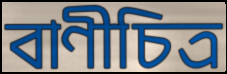
বাণীচিত্র